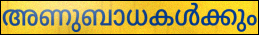
അണുബാധകൾക്കും